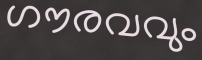
ഗൗരവവും